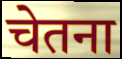
चेतना